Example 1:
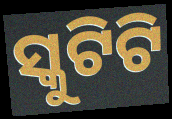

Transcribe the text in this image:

ସ୍କୁଟିଟି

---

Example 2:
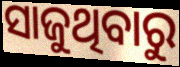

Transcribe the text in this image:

ସାଜୁଥିବାରୁ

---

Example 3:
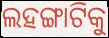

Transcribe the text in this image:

ଲହଙ୍ଗାଟିକୁ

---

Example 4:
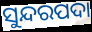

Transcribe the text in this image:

ସୁନ୍ଦରପଦା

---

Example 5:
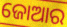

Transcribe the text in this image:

ଜୋଆର